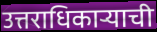
उत्तराधिकाऱ्याची